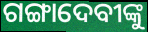
ଗଙ୍ଗାଦେବୀଙ୍କୁ